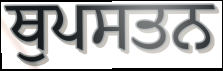
ਥੁਪਸਤਨ